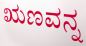
ಋಣವನ್ನ